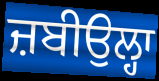
ਜ਼ਬੀਉਲ੍ਹਾ